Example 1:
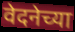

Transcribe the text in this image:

वेदनेच्या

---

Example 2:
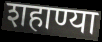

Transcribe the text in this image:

शहाण्या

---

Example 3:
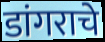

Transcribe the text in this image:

डांगराचे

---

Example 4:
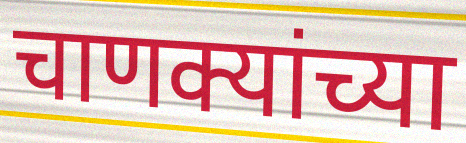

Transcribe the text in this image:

चाणक्यांच्या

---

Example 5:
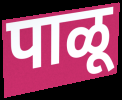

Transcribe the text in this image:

पाळू